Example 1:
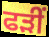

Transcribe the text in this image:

ਫੜੀਂ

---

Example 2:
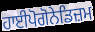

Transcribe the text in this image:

ਹਾਈਪੋਗੋਨੇਡਿਜ਼ਮ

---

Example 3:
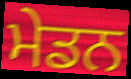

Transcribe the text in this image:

ਮੇਡਨ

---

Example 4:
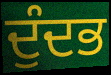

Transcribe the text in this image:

ਦੁੰਦਭ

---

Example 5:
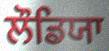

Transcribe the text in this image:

ਲੌਡਿਯਾ